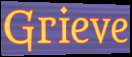
Grieve